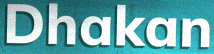
Dhakan